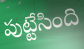
పుట్టేసింది